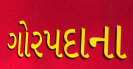
ગોરપદાના